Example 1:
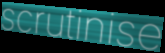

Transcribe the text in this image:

scrutinise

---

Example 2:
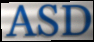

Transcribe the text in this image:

ASD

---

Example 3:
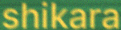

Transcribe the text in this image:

shikara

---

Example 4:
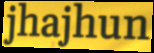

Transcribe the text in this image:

jhajhun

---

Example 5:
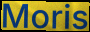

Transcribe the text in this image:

Moris